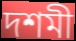
দশমী